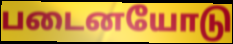
படைனயோடு